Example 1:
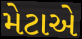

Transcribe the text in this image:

મેટાએ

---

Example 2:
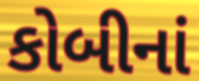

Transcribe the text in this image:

કોબીનાં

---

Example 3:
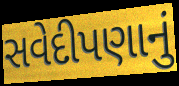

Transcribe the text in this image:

સવેદીપણાનું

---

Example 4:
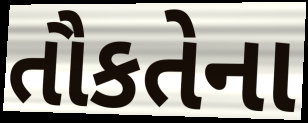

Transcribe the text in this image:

તૌકતેના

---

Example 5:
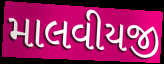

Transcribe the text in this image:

માલવીયજી